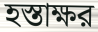
হস্তাক্ষর